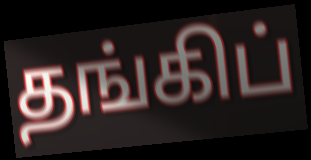
தங்கிப்